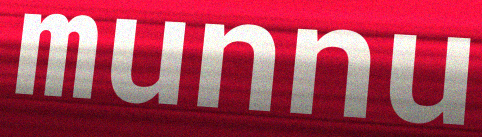
munnu